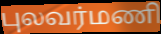
புலவர்மணி